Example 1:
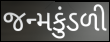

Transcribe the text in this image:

જન્મકુંડળી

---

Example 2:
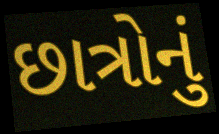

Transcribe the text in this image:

છાત્રોનું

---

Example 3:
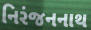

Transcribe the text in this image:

નિરંજનનાથ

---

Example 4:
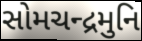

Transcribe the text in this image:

સોમચન્દ્રમુનિ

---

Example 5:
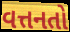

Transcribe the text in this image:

વત્તનતો